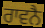
ਰਾਵਨੈ